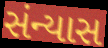
સંન્યાસ